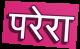
परेरा